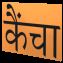
कैंचा